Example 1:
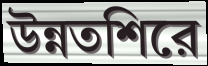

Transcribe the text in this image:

উন্নতশিরে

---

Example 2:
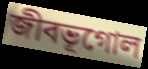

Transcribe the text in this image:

জীবভূগোল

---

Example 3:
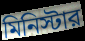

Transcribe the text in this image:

মিনিস্টার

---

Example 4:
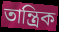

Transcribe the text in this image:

তান্ত্রিক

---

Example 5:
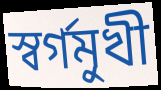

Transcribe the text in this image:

স্বর্গমুখী